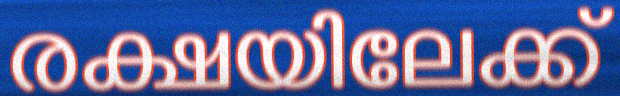
രക്ഷയിലേക്ക്